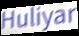
Huliyar